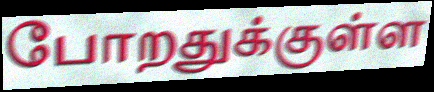
போறதுக்குள்ள